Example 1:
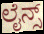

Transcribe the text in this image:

ಲೈನ್ಸ್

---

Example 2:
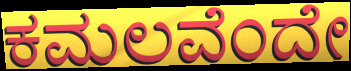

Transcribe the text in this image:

ಕಮಲವೆಂದೇ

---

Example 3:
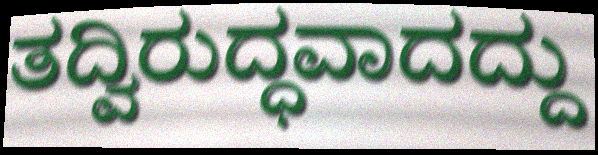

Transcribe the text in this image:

ತದ್ವಿರುದ್ಧವಾದದ್ದು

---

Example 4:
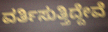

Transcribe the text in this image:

ವರ್ತಿಸುತ್ತಿದ್ದೇವೆ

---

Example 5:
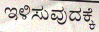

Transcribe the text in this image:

ಇಳಿಸುವುದಕ್ಕೆ